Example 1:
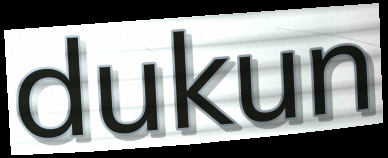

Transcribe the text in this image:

dukun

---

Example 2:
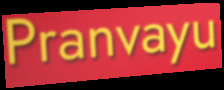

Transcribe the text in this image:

Pranvayu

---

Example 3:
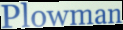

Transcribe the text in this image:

Plowman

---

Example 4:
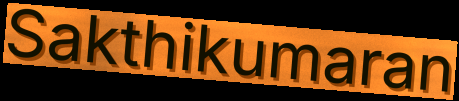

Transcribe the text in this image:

Sakthikumaran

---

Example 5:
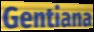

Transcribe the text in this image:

Gentiana